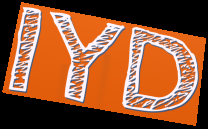
IYD